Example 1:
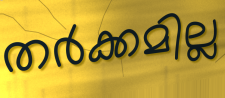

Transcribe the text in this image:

തർക്കമില്ല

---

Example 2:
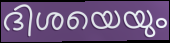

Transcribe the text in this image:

ദിശയെയും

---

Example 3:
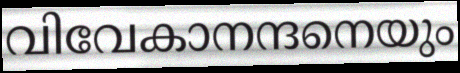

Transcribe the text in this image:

വിവേകാനന്ദനെയും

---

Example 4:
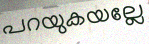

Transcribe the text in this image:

പറയുകയല്ലേ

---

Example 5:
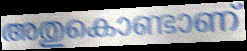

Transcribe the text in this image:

അതുകൊണ്ടാണ്